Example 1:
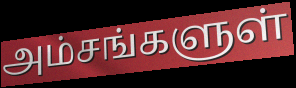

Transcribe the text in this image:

அம்சங்களுள்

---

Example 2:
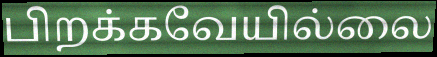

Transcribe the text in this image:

பிறக்கவேயில்லை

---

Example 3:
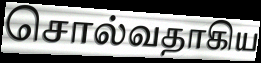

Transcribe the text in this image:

சொல்வதாகிய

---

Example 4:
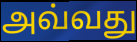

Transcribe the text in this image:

அவ்வது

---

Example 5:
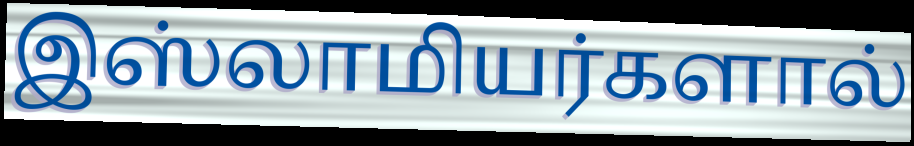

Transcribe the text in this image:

இஸ்லாமியர்களால்